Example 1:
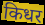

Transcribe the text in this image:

किधर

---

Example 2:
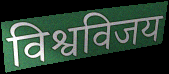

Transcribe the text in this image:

विश्वविजय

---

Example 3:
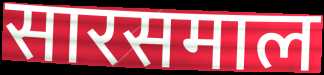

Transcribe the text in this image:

सारसमाल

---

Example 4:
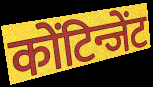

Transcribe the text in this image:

कोंटिन्जेंट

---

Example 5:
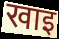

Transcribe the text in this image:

खाइ